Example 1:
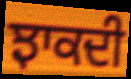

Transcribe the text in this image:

ਝਾਕਦੀ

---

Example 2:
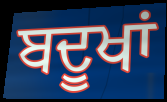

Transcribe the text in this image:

ਬਦੂਖਾਂ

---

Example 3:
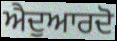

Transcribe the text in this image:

ਐਦੁਆਰਦੋ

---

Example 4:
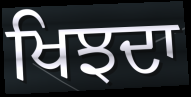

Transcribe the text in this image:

ਖਿਝਦਾ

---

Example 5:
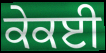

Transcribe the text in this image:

ਕੇਕਈ